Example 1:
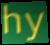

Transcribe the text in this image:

hy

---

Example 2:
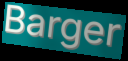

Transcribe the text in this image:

Barger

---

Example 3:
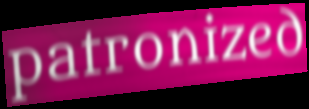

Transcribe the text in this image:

patronized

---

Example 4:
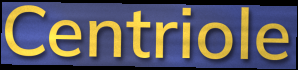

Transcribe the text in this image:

Centriole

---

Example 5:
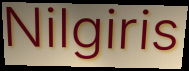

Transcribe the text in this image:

Nilgiris